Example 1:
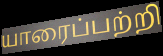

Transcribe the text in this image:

யாரைப்பற்றி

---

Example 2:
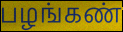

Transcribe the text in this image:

பழங்கண்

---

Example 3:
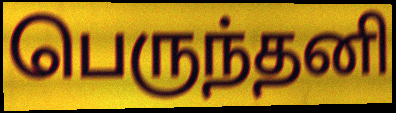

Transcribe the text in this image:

பெருந்தனி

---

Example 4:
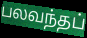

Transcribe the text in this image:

பலவந்தப்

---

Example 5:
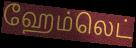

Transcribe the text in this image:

ஹேம்லெட்